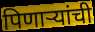
पिणाऱ्यांची